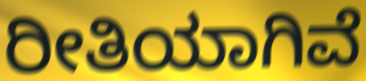
ರೀತಿಯಾಗಿವೆ